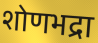
शोणभद्रा